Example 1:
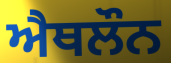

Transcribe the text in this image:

ਐਥਲੌਨ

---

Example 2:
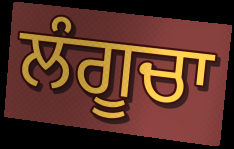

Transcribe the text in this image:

ਲੰਗੂਚਾ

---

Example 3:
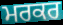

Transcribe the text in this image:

ਮਰਕਰ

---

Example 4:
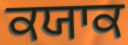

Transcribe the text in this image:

ਕਯਾਕ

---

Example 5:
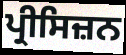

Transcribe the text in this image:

ਪ੍ਰੀਸਿਜ਼ਨ